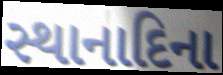
સ્થાનાદિના